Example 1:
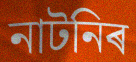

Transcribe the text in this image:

নাটনিৰ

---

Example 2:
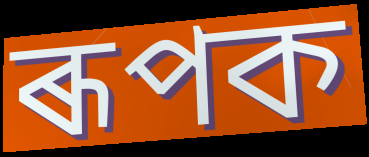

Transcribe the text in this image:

ৰূপক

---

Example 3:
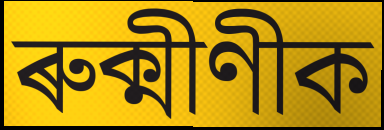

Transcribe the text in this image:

ৰুক্মীণীক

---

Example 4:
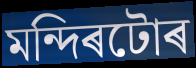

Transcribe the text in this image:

মন্দিৰটোৰ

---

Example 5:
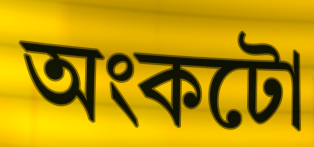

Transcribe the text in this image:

অংকটো